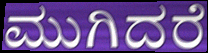
ಮುಗಿದರೆ